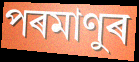
পৰমাণুৰ